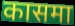
कासमा